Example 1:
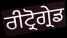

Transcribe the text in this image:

ਰੀਟ੍ਰੋਗ੍ਰੇਡ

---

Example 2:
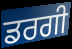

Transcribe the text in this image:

ਡਰਗੀ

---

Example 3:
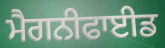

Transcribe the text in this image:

ਮੈਗਨੀਫਾਈਡ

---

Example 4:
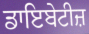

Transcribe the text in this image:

ਡਾਇਬੇਟੀਜ਼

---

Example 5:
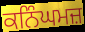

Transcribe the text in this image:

ਕਨਿੰਘਮਜ਼